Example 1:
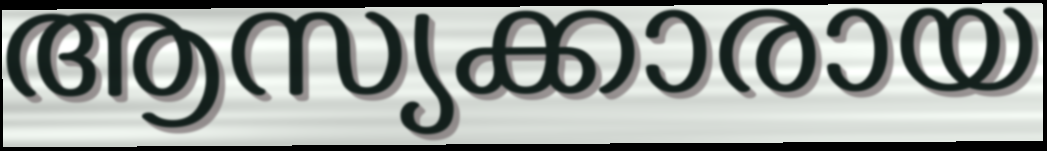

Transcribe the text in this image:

ആസ്യക്കാരായ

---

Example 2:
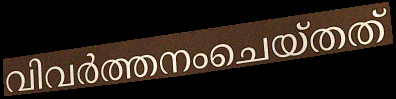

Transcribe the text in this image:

വിവർത്തനംചെയ്തത്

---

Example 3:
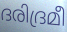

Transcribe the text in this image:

ദരിദ്രമീ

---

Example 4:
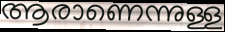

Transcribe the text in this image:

ആരാണെന്നുള്ള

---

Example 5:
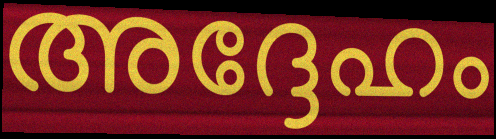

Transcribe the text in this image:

അദ്ദേഹം